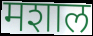
मशाल